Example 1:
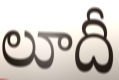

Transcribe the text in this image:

లూదీ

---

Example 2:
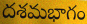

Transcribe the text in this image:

దశమభాగం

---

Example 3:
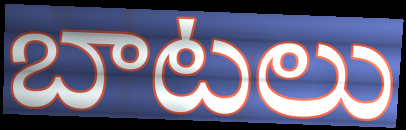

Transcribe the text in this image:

బాటలు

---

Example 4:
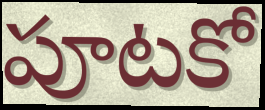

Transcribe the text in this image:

పూటకో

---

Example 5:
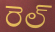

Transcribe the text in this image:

రెల్